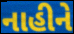
નાહીને